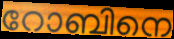
റോബിനെ